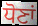
ਧੋਣਾਂ